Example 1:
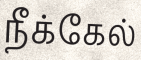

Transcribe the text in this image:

நீக்கேல்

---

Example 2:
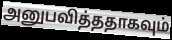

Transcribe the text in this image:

அனுபவித்ததாகவும்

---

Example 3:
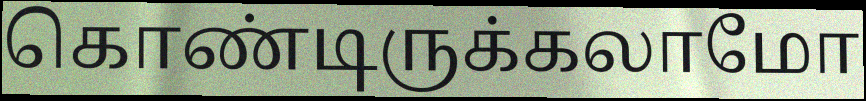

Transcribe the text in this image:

கொண்டிருக்கலாமோ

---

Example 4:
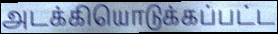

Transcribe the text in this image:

அடக்கியொடுக்கப்பட்ட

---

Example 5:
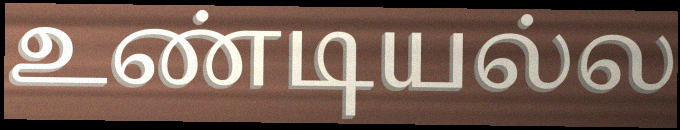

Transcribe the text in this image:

உண்டியல்ல